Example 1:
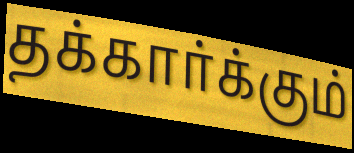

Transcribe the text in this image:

தக்கார்க்கும்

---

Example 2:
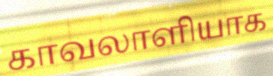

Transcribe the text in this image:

காவலாளியாக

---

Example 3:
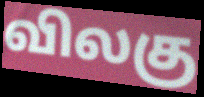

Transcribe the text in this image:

விலகு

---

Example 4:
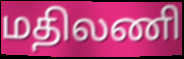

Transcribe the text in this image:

மதிலணி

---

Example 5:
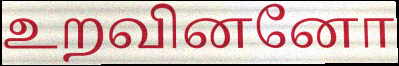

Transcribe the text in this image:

உறவினனோ